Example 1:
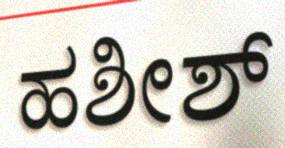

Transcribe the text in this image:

ಹಶೀಶ್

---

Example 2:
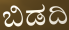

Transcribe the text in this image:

ಬಿಡದಿ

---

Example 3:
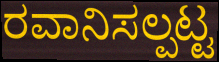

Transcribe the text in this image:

ರವಾನಿಸಲ್ಪಟ್ಟ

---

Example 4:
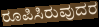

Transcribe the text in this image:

ರೂಪಿಸಿರುವುದರ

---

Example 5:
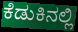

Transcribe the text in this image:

ಕೆಡುಕಿನಲ್ಲಿ